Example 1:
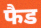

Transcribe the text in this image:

फैड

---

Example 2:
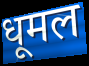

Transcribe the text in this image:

धूमल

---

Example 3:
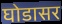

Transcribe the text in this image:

घोडासर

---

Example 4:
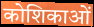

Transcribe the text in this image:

कोशिकाओं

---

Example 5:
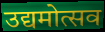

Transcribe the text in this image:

उद्यमोत्सव